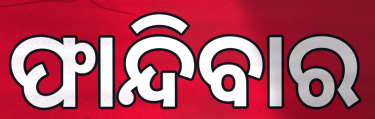
ଫାନ୍ଦିବାର